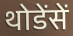
थोडेंसें